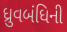
ધ્રુવબંધિની